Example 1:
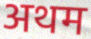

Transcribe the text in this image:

अथम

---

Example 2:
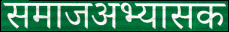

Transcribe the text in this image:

समाजअभ्यासक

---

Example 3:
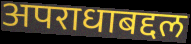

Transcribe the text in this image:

अपराधाबद्दल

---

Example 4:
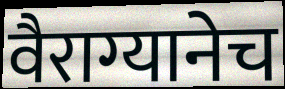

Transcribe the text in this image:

वैराग्यानेच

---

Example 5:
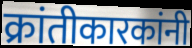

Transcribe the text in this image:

क्रांतीकारकांनी